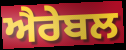
ਐਰੇਬਲ